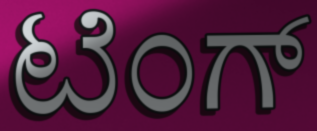
ಟೆಂಗ್